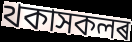
থকাসকলৰ